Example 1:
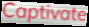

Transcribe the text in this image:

Captivate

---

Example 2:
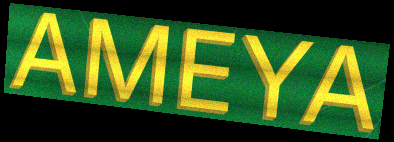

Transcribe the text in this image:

AMEYA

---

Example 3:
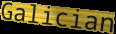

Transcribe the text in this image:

Galician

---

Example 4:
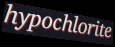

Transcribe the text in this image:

hypochlorite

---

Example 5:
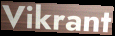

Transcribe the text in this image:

Vikrant